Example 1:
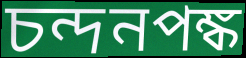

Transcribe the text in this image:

চন্দনপঙ্ক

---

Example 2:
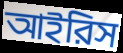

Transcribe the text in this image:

আইরিস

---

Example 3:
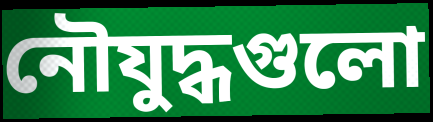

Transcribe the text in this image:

নৌযুদ্ধগুলো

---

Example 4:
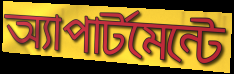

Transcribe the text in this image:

অ্যাপার্টমেন্টে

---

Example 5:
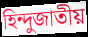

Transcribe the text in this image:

হিন্দুজাতীয়